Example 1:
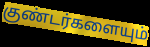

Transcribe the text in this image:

குண்டர்களையும்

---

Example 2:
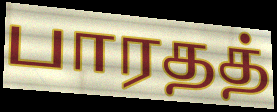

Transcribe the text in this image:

பாரதத்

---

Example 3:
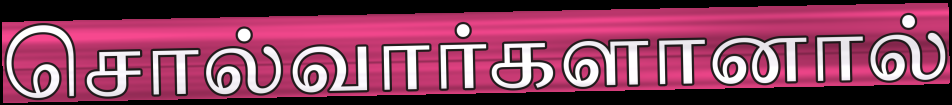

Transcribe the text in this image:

சொல்வார்களானால்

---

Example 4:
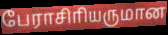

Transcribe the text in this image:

பேராசிரியருமான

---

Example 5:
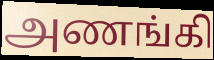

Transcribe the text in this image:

அணங்கி